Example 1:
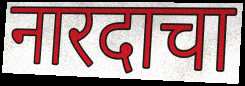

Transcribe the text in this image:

नारदाचा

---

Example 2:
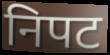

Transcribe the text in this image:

निपट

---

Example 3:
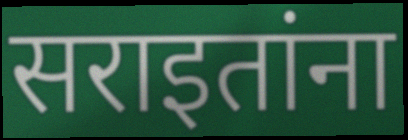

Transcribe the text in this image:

सराइतांना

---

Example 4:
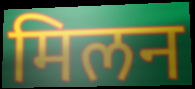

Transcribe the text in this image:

मिलन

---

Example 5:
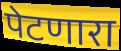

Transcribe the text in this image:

पेटणारा